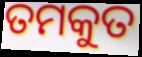
ତମକୁତ